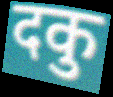
दकु